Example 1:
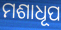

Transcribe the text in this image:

ମଶାଧୂପ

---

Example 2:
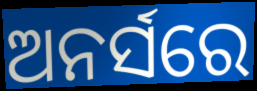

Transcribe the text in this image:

ଅନର୍ସରେ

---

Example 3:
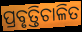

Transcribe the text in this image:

ପ୍ରବୃତ୍ତିଚାଳିତ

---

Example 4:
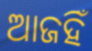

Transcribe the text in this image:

ଆଜହିଁ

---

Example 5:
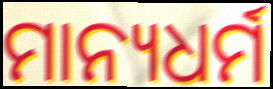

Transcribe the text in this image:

ମାନ୍ୟଧର୍ମ